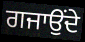
ਗਜਾਉਂਦੇ